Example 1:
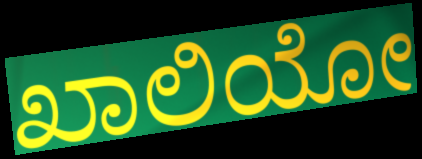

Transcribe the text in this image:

ಖಾಲಿಯೋ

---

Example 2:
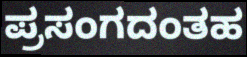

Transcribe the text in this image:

ಪ್ರಸಂಗದಂತಹ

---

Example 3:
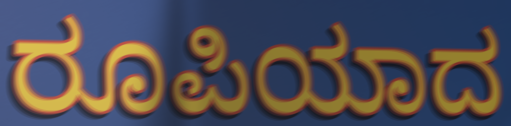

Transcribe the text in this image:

ರೂಪಿಯಾದ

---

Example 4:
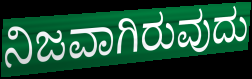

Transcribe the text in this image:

ನಿಜವಾಗಿರುವುದು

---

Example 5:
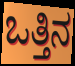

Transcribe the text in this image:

ಒತ್ತಿನ